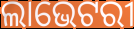
ଲାଭେଟରୀ